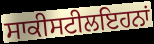
ਸਾਕੀਸਟੀਲਇਹਨਾਂ